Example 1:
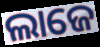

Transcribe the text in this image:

ଲାଜେ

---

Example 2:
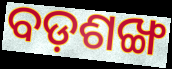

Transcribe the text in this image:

ବଡ଼ଶଙ୍ଖ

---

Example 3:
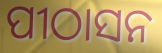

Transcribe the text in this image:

ପୀଠାସନ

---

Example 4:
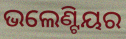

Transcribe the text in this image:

ଭଲେଣ୍ଟିୟର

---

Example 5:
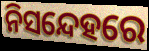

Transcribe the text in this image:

ନିସନ୍ଦେହରେ